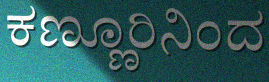
ಕಣ್ಣೂರಿನಿಂದ